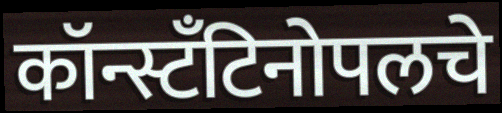
कॉन्स्टँटिनोपलचे